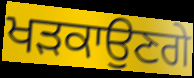
ਖੜਕਾਉਣਗੇ